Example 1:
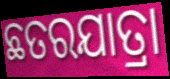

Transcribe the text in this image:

ଛତରଯାତ୍ରା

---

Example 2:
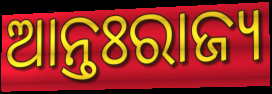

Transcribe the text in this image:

ଆନ୍ତଃରାଜ୍ୟ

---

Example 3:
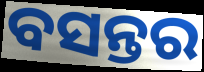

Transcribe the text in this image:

ବସନ୍ତର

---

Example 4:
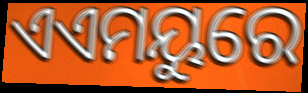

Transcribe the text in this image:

ଏଏମୟୁରେ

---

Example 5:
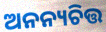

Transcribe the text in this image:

ଅନନ୍ୟଚିତ୍ତ